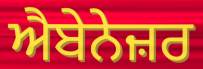
ਐਬੇਨੇਜ਼ਰ